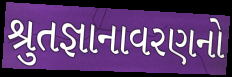
શ્રુતજ્ઞાનાવરણનો